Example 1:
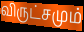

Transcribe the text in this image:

விருட்சமும்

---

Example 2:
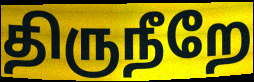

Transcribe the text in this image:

திருநீறே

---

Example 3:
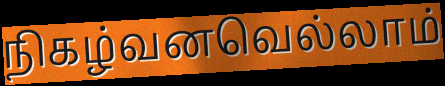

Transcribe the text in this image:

நிகழ்வனவெல்லாம்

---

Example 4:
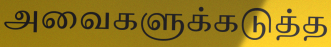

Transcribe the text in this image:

அவைகளுக்கடுத்த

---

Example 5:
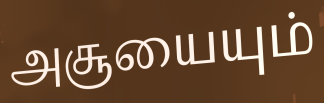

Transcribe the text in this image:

அசூயையும்